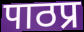
पाठप्र